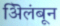
ऄिलंबून